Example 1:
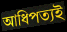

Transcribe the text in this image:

আধিপত্যই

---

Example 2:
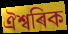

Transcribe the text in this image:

ঐশ্বৰিক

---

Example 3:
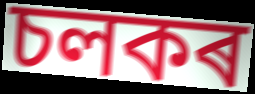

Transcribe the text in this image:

চলকৰ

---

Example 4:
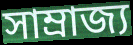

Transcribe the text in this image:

সাম্ৰাজ্য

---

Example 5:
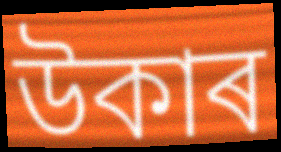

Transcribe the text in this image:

উকাৰ